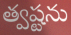
త్వష్టను